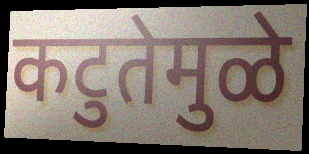
कटुतेमुळे